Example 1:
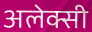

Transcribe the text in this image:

अलेक्सी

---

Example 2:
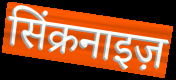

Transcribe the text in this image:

सिंक्रनाइज़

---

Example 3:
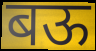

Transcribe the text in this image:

बऊ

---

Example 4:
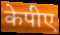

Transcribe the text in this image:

केपीए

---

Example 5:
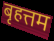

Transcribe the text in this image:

बृहत्तम